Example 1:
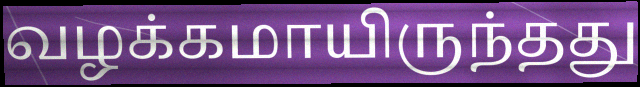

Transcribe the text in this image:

வழக்கமாயிருந்தது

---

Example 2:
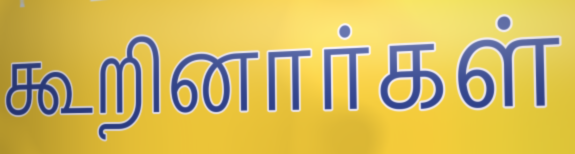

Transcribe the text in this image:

கூறினார்கள்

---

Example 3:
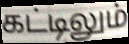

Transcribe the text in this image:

கட்டிலும்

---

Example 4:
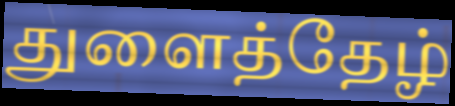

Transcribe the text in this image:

துளைத்தேழ்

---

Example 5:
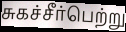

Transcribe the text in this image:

சுகச்சீர்பெற்று